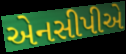
એનસીપીએ